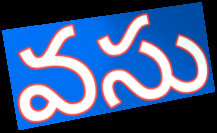
వసు